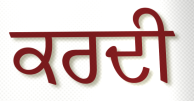
ਕਰਦੀ